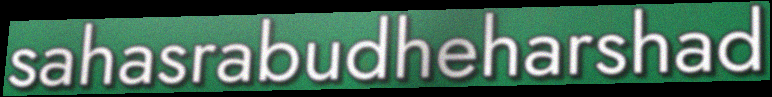
sahasrabudheharshad